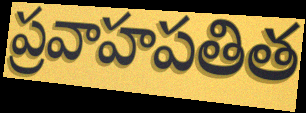
ప్రవాహపతిత